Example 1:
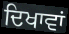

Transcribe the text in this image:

ਦਿਖਾਵਾਂ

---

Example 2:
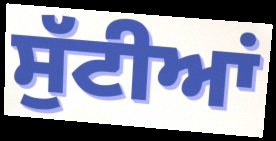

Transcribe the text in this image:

ਸੁੱਟੀਆਂ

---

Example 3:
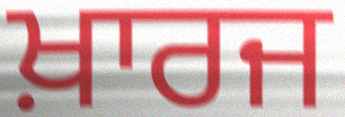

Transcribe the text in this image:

ਖ਼ਾਰਜ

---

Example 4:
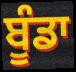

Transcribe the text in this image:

ਬੂੰਡਾ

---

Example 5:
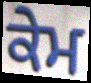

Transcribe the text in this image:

ਕੇਮ